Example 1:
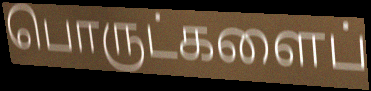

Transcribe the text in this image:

பொருட்களைப்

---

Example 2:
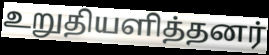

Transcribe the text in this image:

உறுதியளித்தனர்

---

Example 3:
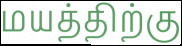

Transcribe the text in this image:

மயத்திற்கு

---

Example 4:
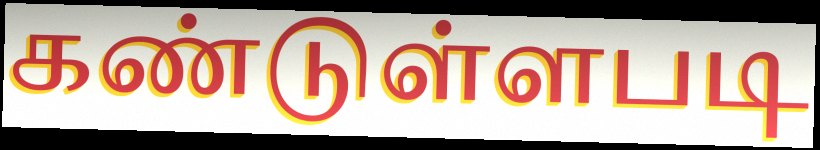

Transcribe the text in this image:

கண்டுள்ளபடி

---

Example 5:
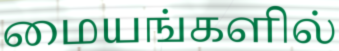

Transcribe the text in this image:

மையங்களில்